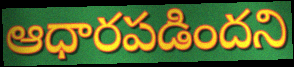
ఆధారపడిందని